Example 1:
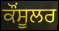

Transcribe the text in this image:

ਕੌਂਸੂਲਰ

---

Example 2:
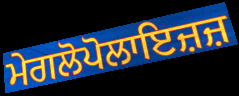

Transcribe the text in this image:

ਮੇਗਲੋਪੋਲਾਇਜ਼ਜ਼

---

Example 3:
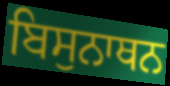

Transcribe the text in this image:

ਬਿਸੁਨਾਥਨ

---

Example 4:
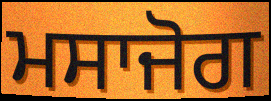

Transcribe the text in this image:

ਮਸਾਜੋਗ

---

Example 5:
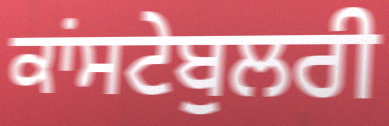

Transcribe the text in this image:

ਕਾਂਸਟੇਬੁਲਰੀ